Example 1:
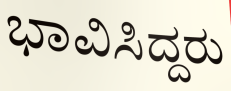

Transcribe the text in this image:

ಭಾವಿಸಿದ್ದರು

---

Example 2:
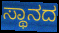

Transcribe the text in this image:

ಸ್ಥಾನದ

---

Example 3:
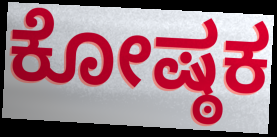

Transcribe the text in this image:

ಕೋಷ್ಠಕ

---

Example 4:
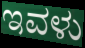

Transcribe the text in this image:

ಇವಳು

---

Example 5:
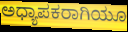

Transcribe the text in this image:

ಅಧ್ಯಾಪಕರಾಗಿಯೂ